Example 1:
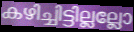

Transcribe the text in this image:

കഴിച്ചിട്ടില്ലല്ലോ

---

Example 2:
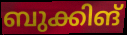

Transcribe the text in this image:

ബുക്കിങ്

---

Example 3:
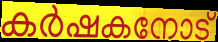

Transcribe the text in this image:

കർഷകനോട്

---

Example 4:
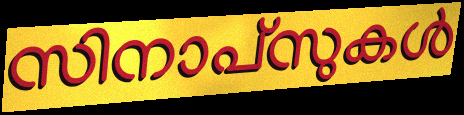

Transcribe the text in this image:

സിനാപ്സുകൾ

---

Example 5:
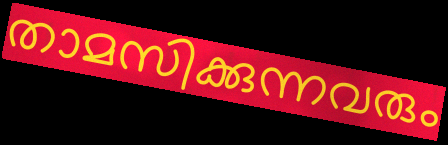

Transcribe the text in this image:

താമസിക്കുന്നവരും